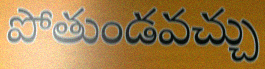
పోతుండవచ్చు